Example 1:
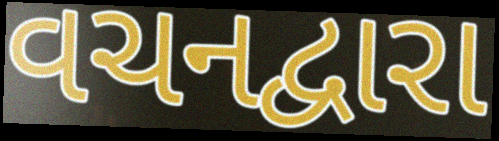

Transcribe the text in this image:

વચનદ્વારા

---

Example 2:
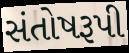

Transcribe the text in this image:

સંતોષરૂપી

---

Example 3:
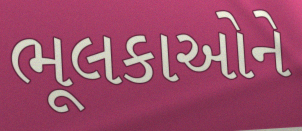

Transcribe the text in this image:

ભૂલકાઓને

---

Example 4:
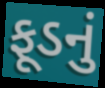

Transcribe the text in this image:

ફૂડનું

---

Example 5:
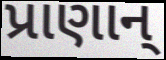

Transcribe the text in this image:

પ્રાણાન્